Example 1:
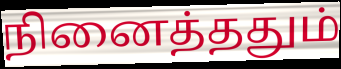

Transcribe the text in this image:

நினைத்ததும்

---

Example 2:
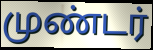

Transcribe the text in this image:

முண்டர்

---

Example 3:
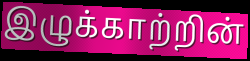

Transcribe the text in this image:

இழுக்காற்றின்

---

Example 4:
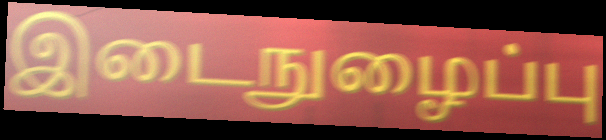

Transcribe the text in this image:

இடைநுழைப்பு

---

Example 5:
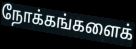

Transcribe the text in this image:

நோக்கங்களைக்